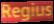
Regius